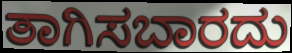
ತಾಗಿಸಬಾರದು